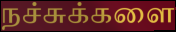
நச்சுக்களை